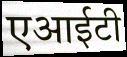
एआईटी